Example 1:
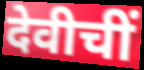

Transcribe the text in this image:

देवीचीं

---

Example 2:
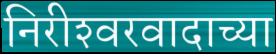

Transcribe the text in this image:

निरीश्वरवादाच्या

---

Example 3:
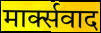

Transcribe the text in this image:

मार्क्सवाद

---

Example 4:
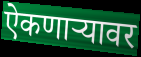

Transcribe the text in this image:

ऐकणार्‍यावर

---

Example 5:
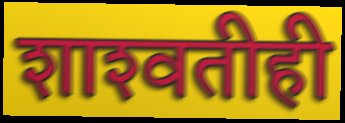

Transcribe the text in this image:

शाश्वतीही